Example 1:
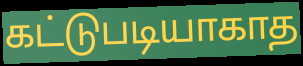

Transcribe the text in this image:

கட்டுபடியாகாத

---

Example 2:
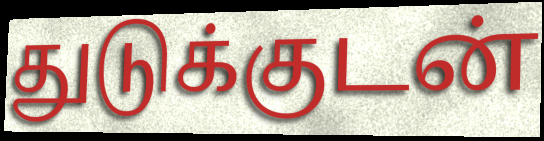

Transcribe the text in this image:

துடுக்குடன்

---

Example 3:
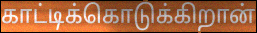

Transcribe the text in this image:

காட்டிக்கொடுக்கிறான்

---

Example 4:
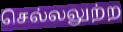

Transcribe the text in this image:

செல்லலுற்ற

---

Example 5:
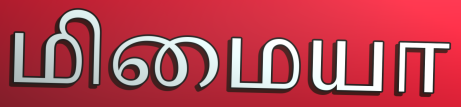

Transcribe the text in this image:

மிமையா